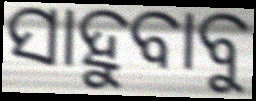
ସାହୁବାବୁ